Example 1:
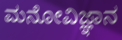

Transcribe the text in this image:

ಮನೋವಿಜ್ಞಾನ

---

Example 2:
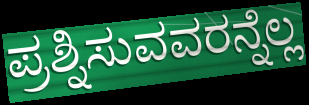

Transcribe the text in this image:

ಪ್ರಶ್ನಿಸುವವರನ್ನೆಲ್ಲ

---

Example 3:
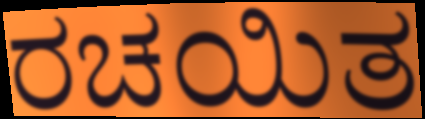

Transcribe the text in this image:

ರಚಯಿತ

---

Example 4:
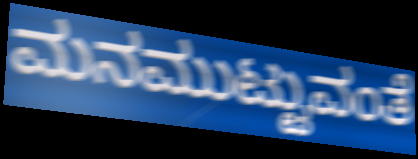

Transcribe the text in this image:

ಮನಮುಟ್ಟುವಂತೆ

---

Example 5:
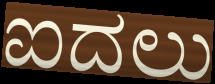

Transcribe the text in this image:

ಐದಲು